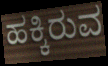
ಹಕ್ಕಿರುವ